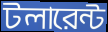
টলারেন্ট